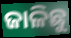
ଜାଳିଛୁ